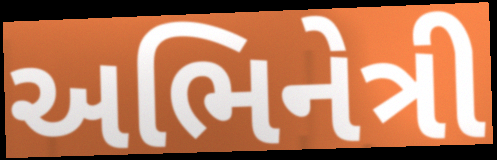
અભિનેત્રી